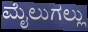
ಮೈಲುಗಲ್ಲು